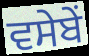
ਵਸੇਬੇਂ